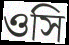
ওসি